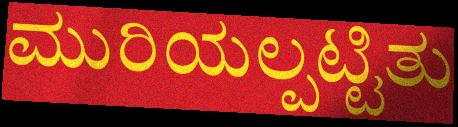
ಮುರಿಯಲ್ಪಟ್ಟಿತು